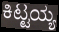
ಕಿಟ್ಟಯ್ಯ